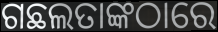
ଗଛଲତାଙ୍କଠାରେ